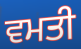
ਵਮਤੀ